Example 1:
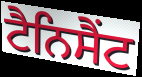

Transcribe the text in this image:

ਟੈਨਿਸੈਂਟ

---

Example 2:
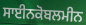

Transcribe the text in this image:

ਸਾਈਨਕੋਬਲਮੀਨ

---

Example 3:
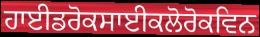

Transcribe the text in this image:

ਹਾਈਡਰੋਕਸਾਈਕਲੋਰੋਕਵਿਨ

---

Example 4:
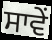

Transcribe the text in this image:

ਸਾਵੇਂ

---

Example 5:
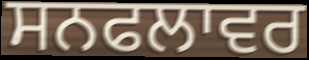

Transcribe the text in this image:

ਸਨਫਲਾਵਰ